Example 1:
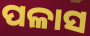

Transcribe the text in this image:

ପଳାସ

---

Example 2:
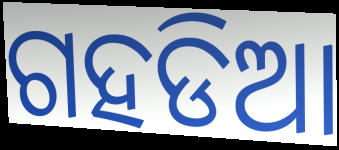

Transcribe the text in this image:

ଗହଡିଆ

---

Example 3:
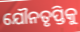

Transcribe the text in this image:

ଯୌନତୃପ୍ତିକୁ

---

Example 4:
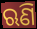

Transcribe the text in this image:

ଋଣି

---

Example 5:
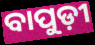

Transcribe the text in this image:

ବାପୁଡ଼ୀ